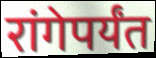
रांगेपर्यंत